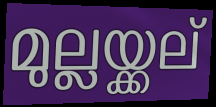
മുല്ലയ്ക്കല്